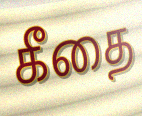
கீதை